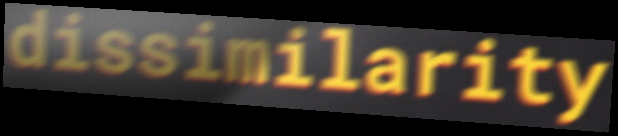
dissimilarity